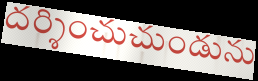
దర్శించుచుండును